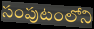
సంపుటంలోని